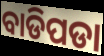
ବାଡିପଡା